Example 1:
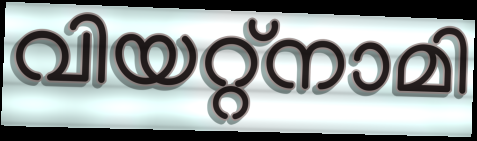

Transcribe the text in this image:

വിയറ്റ്നാമി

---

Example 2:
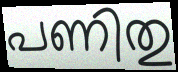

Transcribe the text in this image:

പണിതു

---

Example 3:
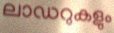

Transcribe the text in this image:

ലാഡറുകളും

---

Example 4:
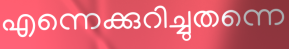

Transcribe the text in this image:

എന്നെക്കുറിച്ചുതന്നെ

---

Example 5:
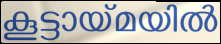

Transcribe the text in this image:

കൂട്ടായ്മയിൽ